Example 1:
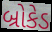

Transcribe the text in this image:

બ્રોકેડ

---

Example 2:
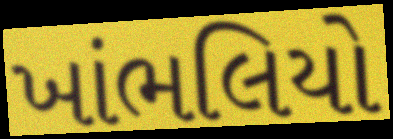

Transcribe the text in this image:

ખાંભલિયો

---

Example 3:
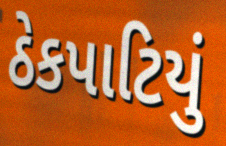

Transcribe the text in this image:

ઠેકપાટિયું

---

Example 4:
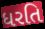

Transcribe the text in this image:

ધરતિ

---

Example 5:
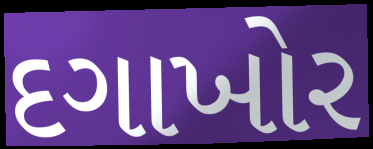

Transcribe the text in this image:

દગાખોર